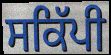
ਸਕਿੱਪੀ